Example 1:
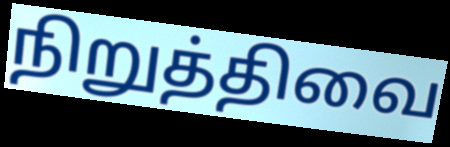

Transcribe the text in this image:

நிறுத்திவை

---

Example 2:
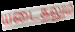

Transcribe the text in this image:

யடைதலும்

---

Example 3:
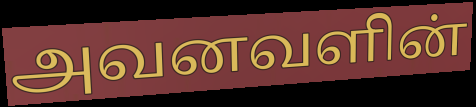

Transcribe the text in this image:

அவனவளின்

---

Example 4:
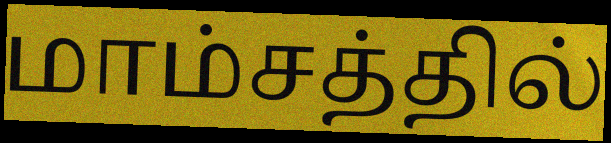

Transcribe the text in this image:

மாம்சத்தில்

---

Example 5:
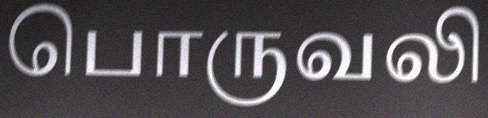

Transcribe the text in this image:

பொருவலி